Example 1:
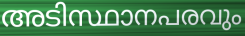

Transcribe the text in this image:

അടിസ്ഥാനപരവും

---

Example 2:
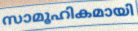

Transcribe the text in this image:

സാമൂഹികമായി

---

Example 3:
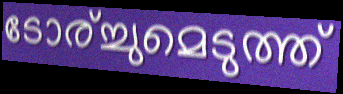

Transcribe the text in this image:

ടോര്ച്ചുമെടുത്ത്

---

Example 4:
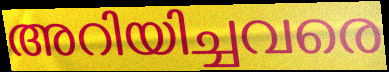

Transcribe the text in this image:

അറിയിച്ചവരെ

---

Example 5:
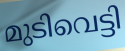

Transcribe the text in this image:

മുടിവെട്ടി